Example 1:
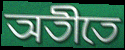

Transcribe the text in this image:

অতীতে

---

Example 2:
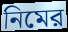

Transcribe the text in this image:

নিমের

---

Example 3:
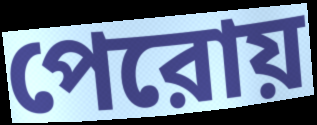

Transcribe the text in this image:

পেরোয়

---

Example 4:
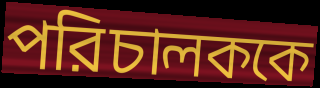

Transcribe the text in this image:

পরিচালককে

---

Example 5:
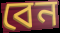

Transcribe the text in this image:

বেন